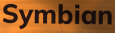
Symbian